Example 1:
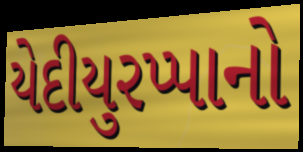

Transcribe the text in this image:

યેદીયુરપ્પાનો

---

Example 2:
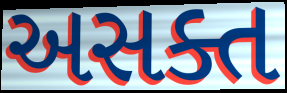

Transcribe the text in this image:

અસક્ત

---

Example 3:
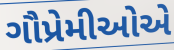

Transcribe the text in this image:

ગૌપ્રેમીઓએ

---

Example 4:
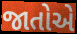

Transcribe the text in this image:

જાતોએ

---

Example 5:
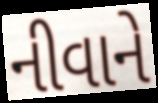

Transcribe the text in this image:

નીવાને